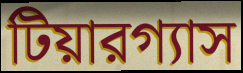
টিয়ারগ্যাস